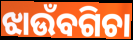
ଝାଉଁବଗିଚା